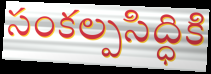
సంకల్పసిద్ధికి